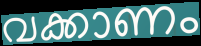
വക്കാണം